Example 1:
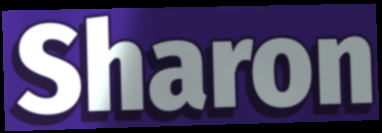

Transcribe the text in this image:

Sharon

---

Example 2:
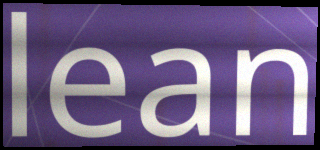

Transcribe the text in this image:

lean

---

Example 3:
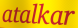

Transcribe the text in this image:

atalkar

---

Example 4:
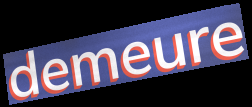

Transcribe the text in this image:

demeure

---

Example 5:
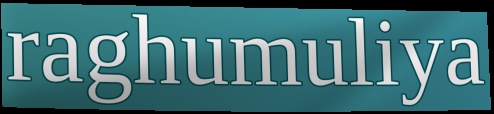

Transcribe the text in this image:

raghumuliya